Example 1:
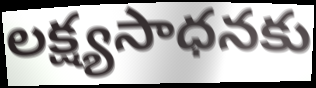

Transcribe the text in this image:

లక్ష్యసాధనకు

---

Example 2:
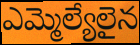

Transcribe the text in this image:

ఎమ్మెల్యేలైన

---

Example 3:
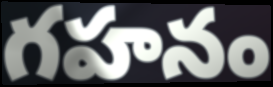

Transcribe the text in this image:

గహనం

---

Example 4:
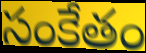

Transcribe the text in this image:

సంకేతం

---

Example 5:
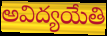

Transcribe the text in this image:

అవిద్యయేతి